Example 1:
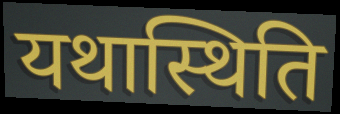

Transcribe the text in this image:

यथास्थिति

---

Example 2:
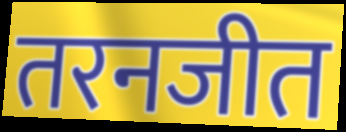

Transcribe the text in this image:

तरनजीत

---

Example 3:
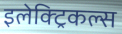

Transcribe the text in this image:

इलेक्ट्रिकल्‍स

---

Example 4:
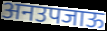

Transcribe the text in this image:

अनउपजाऊ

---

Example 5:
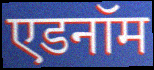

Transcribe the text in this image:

एडनॉम